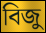
বিজু